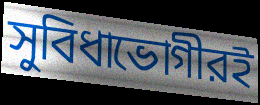
সুবিধাভোগীরই